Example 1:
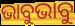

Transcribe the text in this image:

ଭାବୁଭାବୁ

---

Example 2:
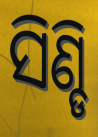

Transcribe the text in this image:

ସିଣ୍ଡି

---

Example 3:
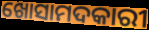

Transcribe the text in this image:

ଖୋସାମଦକାରୀ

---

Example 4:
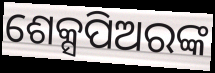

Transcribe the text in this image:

ଶେକ୍ସପିଅରଙ୍କ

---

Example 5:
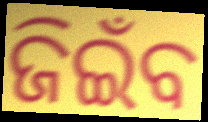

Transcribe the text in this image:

ଜିଇଁବ